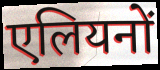
एलियनों